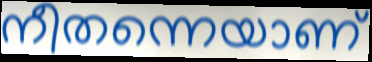
നീതന്നെയാണ്